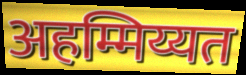
अहम्मिय्यत